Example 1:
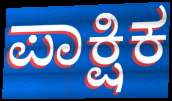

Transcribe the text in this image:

ಪಾಕ್ಷಿಕ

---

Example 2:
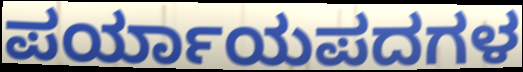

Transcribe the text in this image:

ಪರ್ಯಾಯಪದಗಳ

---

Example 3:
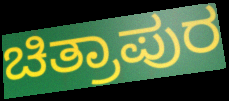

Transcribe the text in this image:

ಚಿತ್ರಾಪುರ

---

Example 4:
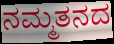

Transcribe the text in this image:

ನಮ್ಮತನದ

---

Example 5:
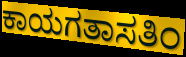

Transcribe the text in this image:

ಕಾಯಗತಾಸತಿಂ